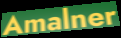
Amalner